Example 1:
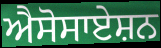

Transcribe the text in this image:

ਐਸੋਸਾਏਸ਼ਨ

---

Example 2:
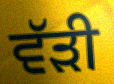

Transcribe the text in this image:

ਵੱੜੀ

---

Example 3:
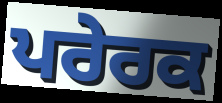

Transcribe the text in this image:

ਪਰੇਰਕ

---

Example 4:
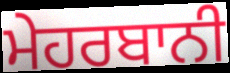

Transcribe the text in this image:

ਮੇਹਰਬਾਨੀ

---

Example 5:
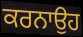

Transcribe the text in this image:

ਕਰਨਾਉਹ